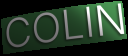
COLIN